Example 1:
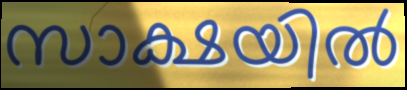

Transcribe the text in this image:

സാക്ഷയിൽ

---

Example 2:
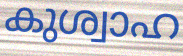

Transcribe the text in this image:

കുശ്വാഹ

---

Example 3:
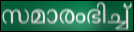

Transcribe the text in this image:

സമാരംഭിച്ച്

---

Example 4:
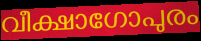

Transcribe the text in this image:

വീക്ഷാഗോപുരം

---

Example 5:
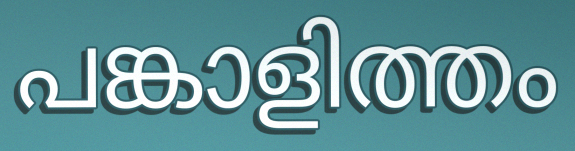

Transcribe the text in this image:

പങ്കാളിത്തം